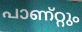
പാണ്റ്റും